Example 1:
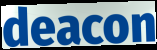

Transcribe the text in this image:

deacon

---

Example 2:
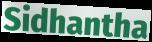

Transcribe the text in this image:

Sidhantha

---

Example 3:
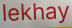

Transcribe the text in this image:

lekhay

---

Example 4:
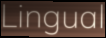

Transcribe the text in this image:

Lingual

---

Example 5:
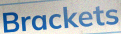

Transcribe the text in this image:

Brackets